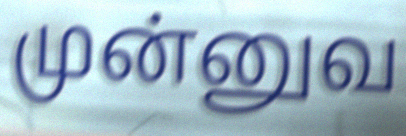
முன்னுவ